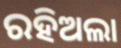
ରହିଅଲା